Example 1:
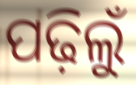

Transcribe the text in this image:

ପଢ଼ିଲୁଁ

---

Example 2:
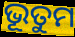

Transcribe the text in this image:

ଭୂତୁମ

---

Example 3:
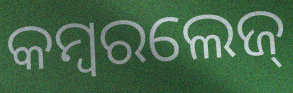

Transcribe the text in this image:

କମ୍ବରଲେଜ୍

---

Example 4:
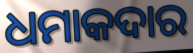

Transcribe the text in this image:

ଧମାକଦାର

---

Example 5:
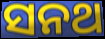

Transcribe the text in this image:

ସନଥ